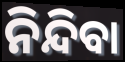
ନିନ୍ଦିବା